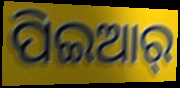
ପିଇଆର୍